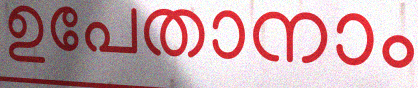
ഉപേതാനാം